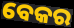
ବେକର